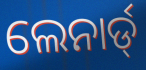
ଲେନାର୍ଡ୍